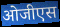
ओजीएस